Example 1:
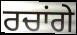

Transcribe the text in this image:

ਰਚਾਂਗੇ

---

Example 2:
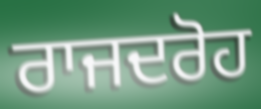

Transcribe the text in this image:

ਰਾਜਦਰੋਹ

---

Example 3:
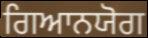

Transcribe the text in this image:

ਗਿਆਨਯੋਗ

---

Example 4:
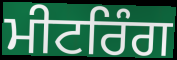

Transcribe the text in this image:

ਮੀਟਰਿੰਗ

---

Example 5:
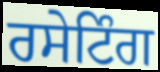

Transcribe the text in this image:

ਰਸੇਟਿੰਗ